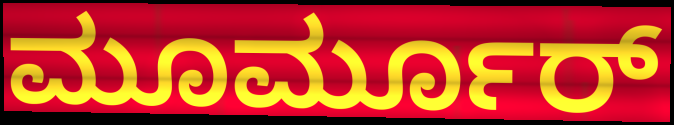
ಮೂರ್ಮೂರ್